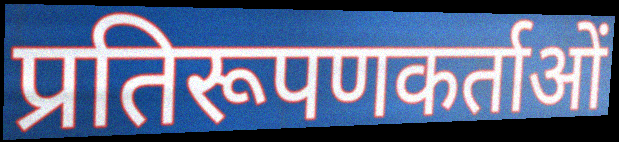
प्रतिरूपणकर्ताओं